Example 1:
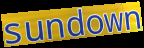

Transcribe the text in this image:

sundown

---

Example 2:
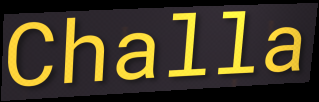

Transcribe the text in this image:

Challa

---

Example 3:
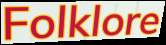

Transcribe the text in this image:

Folklore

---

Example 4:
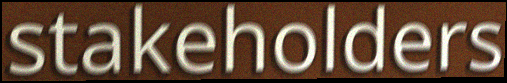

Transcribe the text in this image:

stakeholders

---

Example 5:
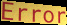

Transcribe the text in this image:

Error